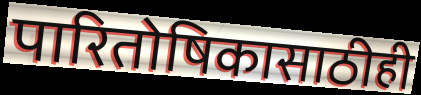
पारितोषिकासाठीही